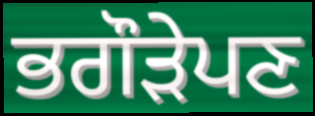
ਭਗੌੜੇਪਣ